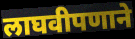
लाघवीपणाने